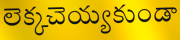
లెక్కచెయ్యకుండా